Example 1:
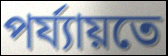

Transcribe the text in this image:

পৰ্য্যায়তে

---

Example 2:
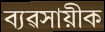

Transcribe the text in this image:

ব্যৱসায়ীক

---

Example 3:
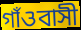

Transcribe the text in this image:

গাঁওবাসী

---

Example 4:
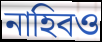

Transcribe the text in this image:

নাহিবও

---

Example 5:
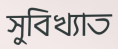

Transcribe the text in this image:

সুবিখ্যাত